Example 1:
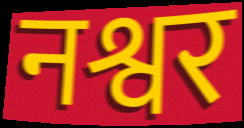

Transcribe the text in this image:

नश्वर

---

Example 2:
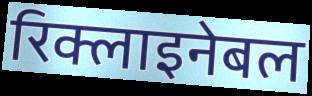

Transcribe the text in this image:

रिक्लाइनेबल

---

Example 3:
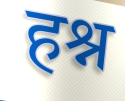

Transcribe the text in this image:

हश्न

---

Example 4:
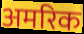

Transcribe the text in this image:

अमरिक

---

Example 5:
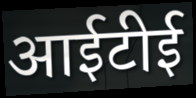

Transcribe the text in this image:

आईटीई